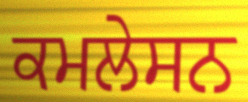
ਕਮਲੇਸਨ